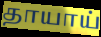
தாயாய்